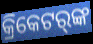
କ୍ରିକେଟର୍‌ଙ୍କ